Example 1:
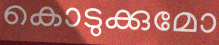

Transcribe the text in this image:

കൊടുക്കുമോ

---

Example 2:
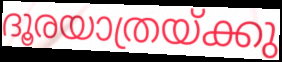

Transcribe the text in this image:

ദൂരയാത്രയ്ക്കു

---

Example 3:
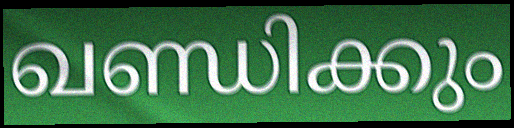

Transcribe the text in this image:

ഖണ്ഡിക്കും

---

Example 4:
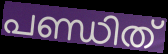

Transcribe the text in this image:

പണ്ഡിത്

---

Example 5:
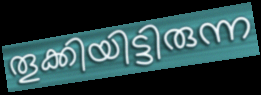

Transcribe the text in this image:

തൂക്കിയിട്ടിരുന്ന